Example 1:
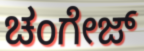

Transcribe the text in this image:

ಚಂಗೇಜ್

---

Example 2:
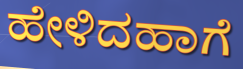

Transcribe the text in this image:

ಹೇಳಿದಹಾಗೆ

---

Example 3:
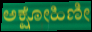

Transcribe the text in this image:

ಅಕ್ಷೋಹಿಣೀ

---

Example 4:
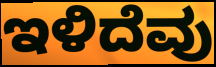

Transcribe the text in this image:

ಇಳಿದೆವು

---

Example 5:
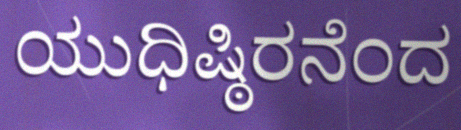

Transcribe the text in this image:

ಯುಧಿಷ್ಠಿರನೆಂದ